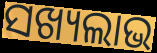
ସଖ୍ୟଲାଭ